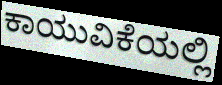
ಕಾಯುವಿಕೆಯಲ್ಲಿ